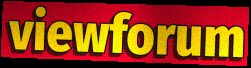
viewforum